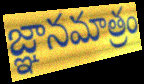
జ్ఞానమాత్రం